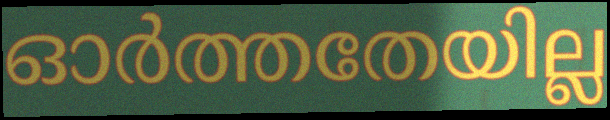
ഓർത്തതേയില്ല